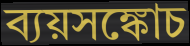
ব্যয়সঙ্কোচ